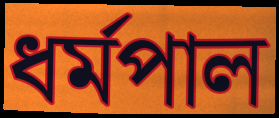
ধৰ্মপাল